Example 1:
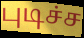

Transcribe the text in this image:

புடிச்ச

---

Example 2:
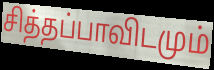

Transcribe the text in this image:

சித்தப்பாவிடமும்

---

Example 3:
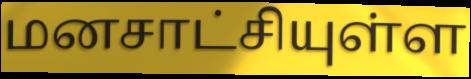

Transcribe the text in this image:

மனசாட்சியுள்ள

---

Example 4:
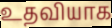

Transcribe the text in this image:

உதவியாக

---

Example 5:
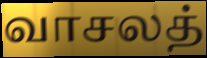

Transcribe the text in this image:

வாசலத்